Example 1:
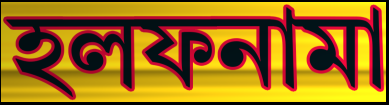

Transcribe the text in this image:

হলফনামা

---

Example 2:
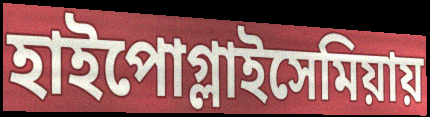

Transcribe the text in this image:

হাইপোগ্লাইসেমিয়ায়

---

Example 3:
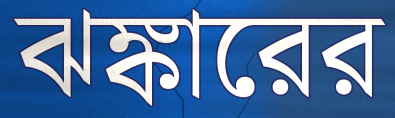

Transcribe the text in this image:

ঝঙ্কারের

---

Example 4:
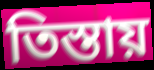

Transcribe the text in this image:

তিস্তায়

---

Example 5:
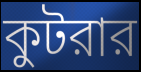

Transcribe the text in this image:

কুটরার